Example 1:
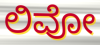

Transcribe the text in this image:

ಲಿವೋ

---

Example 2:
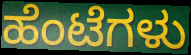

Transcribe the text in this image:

ಹೆಂಟೆಗಳು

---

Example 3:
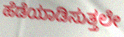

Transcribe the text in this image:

ಹೆಡೆಯಾಡಿಸುತ್ತಲೇ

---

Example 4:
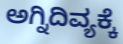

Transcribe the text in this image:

ಅಗ್ನಿದಿವ್ಯಕ್ಕೆ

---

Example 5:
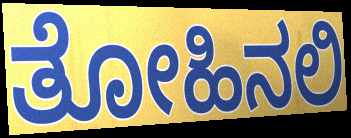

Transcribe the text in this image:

ತೋಹಿನಲಿ